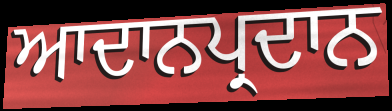
ਆਦਾਨਪ੍ਰਦਾਨ